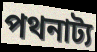
পথনাট্য